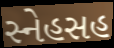
સ્નેહસહ